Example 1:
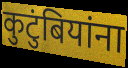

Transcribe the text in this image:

कुटुंबियांना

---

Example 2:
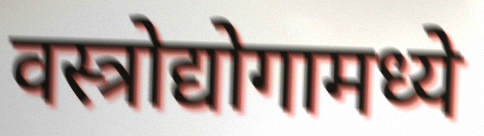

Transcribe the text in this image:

वस्त्रोद्योगामध्ये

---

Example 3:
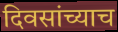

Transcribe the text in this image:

दिवसांच्याच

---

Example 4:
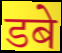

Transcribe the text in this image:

डबे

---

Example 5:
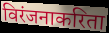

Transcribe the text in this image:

विरंजनाकरिता